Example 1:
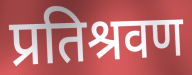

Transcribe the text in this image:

प्रतिश्रवण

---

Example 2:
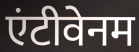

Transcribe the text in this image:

एंटीवेनम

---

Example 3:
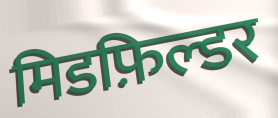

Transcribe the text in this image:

मिडफ़िल्डर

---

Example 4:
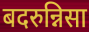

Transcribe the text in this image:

बदरुन्निसा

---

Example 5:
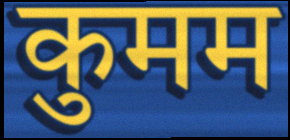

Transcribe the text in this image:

कुमम